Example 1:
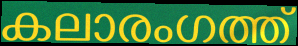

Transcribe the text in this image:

കലാരംഗത്ത്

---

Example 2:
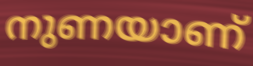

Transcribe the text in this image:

നുണയാണ്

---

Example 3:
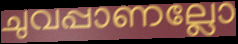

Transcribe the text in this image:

ചുവപ്പാണല്ലോ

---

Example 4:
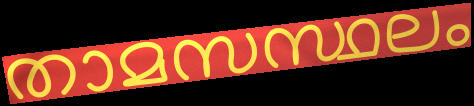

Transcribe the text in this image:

താമസസ്ഥലം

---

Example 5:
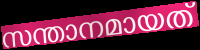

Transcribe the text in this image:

സന്താനമായത്